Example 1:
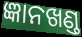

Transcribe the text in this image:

ଜ୍ଞାନଖଣ୍ଡ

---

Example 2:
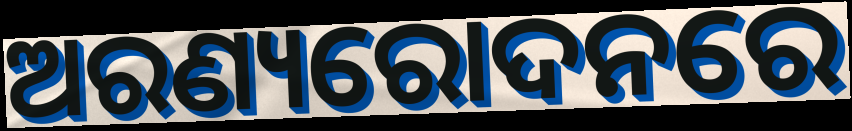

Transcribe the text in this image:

ଅରଣ୍ୟରୋଦନରେ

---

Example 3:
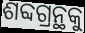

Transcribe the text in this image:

ଶବ୍ଦଗ୍ରନ୍ଥକୁ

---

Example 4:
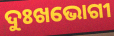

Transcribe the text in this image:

ଦୁଃଖଭୋଗୀ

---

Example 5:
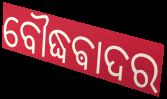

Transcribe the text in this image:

ବୌଦ୍ଧଵାଦର